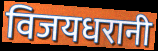
विजयधरानी